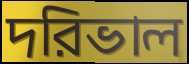
দরিভাল